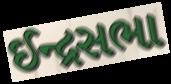
ઈન્દ્રસભા